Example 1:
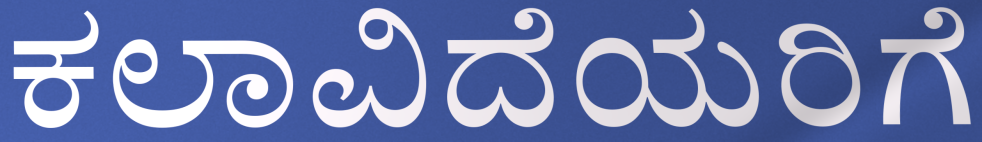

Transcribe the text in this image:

ಕಲಾವಿದೆಯರಿಗೆ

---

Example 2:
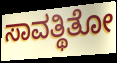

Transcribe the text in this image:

ಸಾವತ್ಥಿತೋ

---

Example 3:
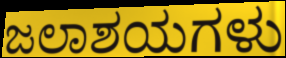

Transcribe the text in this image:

ಜಲಾಶಯಗಳು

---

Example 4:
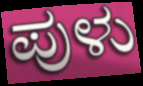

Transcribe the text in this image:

ಪುಳು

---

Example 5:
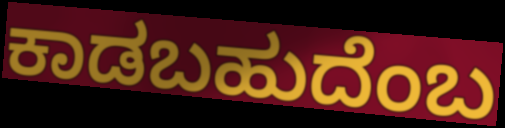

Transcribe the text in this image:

ಕಾಡಬಹುದೆಂಬ